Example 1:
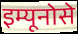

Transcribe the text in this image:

इम्यूनोसे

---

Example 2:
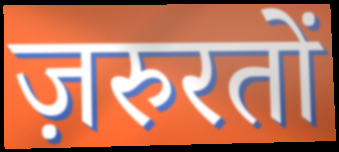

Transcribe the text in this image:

ज़रुरतों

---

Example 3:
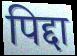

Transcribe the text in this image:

पिद्दा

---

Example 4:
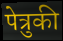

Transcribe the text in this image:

पेत्रुकी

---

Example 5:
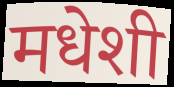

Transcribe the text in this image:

मधेशी